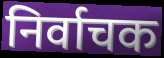
निर्वाचक